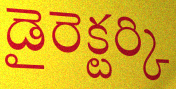
డైరెక్టర్కి